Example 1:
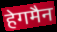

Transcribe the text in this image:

हेगमैन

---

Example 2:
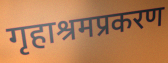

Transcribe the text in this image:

गृहाश्रमप्रकरण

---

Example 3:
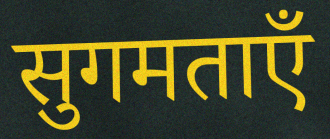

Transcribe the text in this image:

सुगमताएँ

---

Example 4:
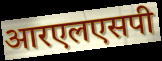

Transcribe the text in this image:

आरएलएसपी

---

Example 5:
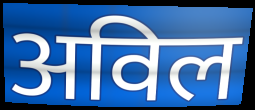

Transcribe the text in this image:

अविल